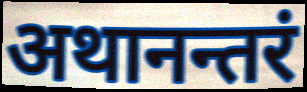
अथानन्तरं